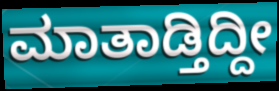
ಮಾತಾಡ್ತಿದ್ದೀ